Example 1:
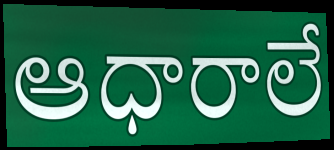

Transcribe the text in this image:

ఆధారాలే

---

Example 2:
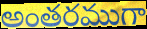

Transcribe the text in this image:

అంతరముగా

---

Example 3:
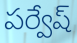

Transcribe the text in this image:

పర్వేష్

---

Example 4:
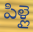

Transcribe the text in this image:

పిళ్లై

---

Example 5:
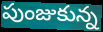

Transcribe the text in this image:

పుంజుకున్న